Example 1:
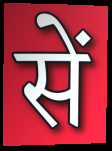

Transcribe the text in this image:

सें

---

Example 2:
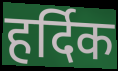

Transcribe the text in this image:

हर्दिक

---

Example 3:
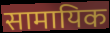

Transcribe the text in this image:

सामायिक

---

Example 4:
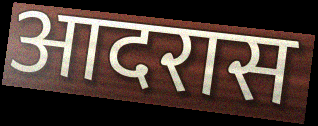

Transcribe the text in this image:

आदरास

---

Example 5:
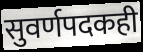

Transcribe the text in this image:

सुवर्णपदकही